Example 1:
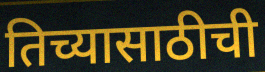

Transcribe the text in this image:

तिच्यासाठीची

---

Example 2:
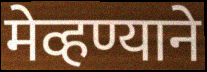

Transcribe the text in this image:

मेव्हण्याने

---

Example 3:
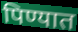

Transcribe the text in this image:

पिण्यात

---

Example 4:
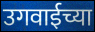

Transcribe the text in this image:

उगवाईच्या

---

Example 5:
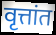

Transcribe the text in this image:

वृत्तांत